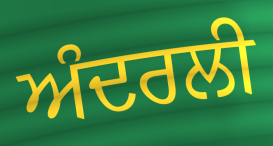
ਅੰਦਰਲੀ